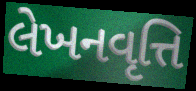
લેખનવૃત્તિ